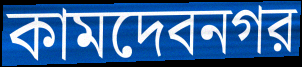
কামদেবনগর